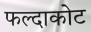
फल्दाकोट